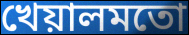
খেয়ালমতো